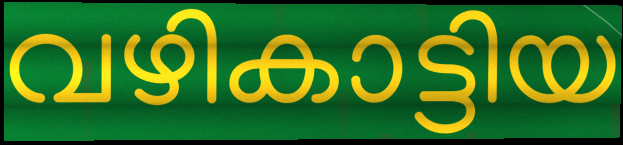
വഴികാട്ടിയ